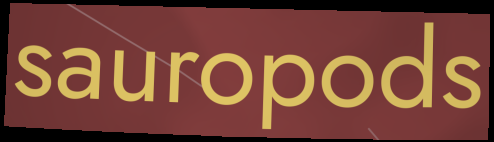
sauropods